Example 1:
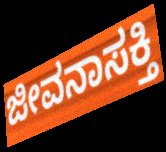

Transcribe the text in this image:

ಜೀವನಾಸಕ್ತಿ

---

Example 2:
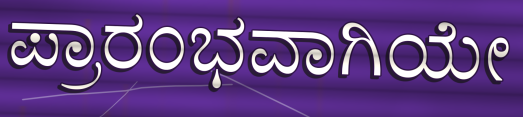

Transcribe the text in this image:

ಪ್ರಾರಂಭವಾಗಿಯೇ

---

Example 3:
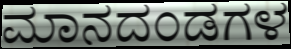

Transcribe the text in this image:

ಮಾನದಂಡಗಳ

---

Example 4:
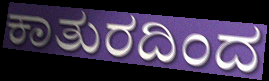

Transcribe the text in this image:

ಕಾತುರದಿಂದ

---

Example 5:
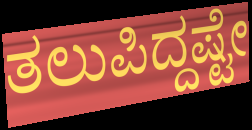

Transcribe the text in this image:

ತಲುಪಿದ್ದಷ್ಟೇ